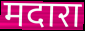
मदारा